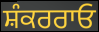
ਸ਼ੰਕਰਰਾਓ